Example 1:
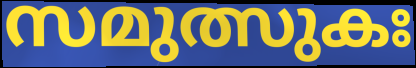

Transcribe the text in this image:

സമുത്സുകഃ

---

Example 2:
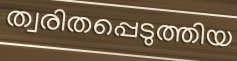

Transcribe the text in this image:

ത്വരിതപ്പെടുത്തിയ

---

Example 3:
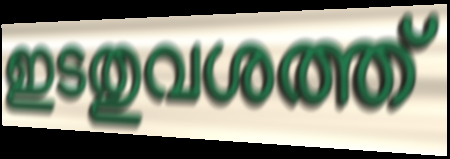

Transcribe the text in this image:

ഇടതുവശത്ത്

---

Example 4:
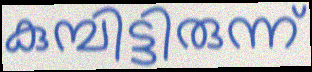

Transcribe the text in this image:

കുമ്പിട്ടിരുന്ന്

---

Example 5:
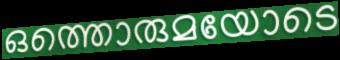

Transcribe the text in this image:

ഒത്തൊരുമയോടെ